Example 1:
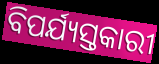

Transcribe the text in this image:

ବିପର୍ଯ୍ୟସ୍ତକାରୀ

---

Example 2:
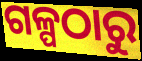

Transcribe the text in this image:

ଗଳ୍ପଠାରୁ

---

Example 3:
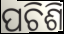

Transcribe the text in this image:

ପଚିଶି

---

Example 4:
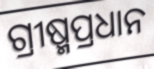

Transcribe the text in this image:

ଗ୍ରୀଷ୍ମପ୍ରଧାନ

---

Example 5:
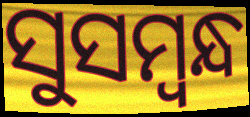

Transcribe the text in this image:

ସୁସମ୍ବନ୍ଧ